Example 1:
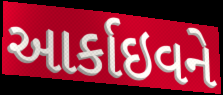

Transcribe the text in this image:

આર્કાઇવને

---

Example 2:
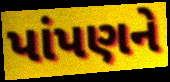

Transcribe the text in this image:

પાંપણને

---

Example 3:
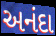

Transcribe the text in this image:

અનંદા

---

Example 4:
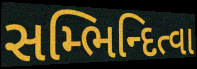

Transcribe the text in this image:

સમ્ભિન્દિત્વા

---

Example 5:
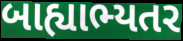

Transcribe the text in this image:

બાહ્યાભ્યતર